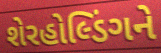
શેરહોલ્ડિંગને